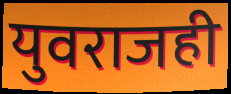
युवराजही